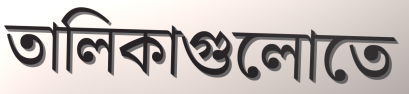
তালিকাগুলোতে